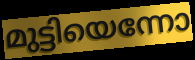
മുട്ടിയെന്നോ